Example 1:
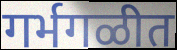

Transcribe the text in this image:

गर्भगळीत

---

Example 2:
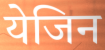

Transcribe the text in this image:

येजिन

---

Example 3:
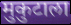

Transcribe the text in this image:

मुकुटाला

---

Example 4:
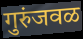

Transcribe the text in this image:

गुरुंजवळ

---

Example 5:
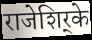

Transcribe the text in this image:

राजेशिर्के